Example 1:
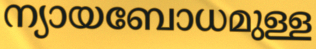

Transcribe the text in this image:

ന്യായബോധമുള്ള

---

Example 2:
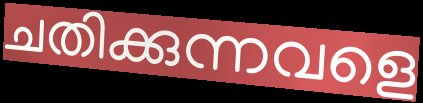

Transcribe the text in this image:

ചതിക്കുന്നവളെ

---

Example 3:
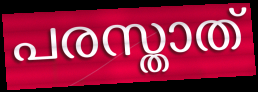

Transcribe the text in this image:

പരസ്താത്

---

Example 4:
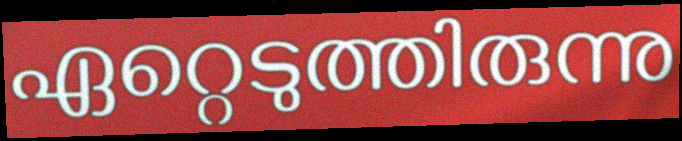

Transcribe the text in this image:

ഏറ്റെടുത്തിരുന്നു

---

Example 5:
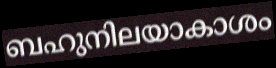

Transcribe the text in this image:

ബഹുനിലയാകാശം